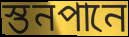
স্তনপানে